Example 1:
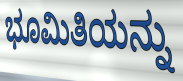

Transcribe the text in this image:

ಭೂಮಿತಿಯನ್ನು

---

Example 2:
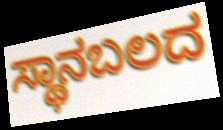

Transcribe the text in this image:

ಸ್ಥಾನಬಲದ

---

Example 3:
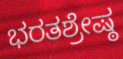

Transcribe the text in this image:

ಭರತಶ್ರೇಷ್ಠ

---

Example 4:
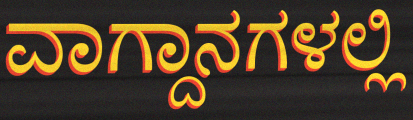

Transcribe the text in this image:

ವಾಗ್ದಾನಗಳಲ್ಲಿ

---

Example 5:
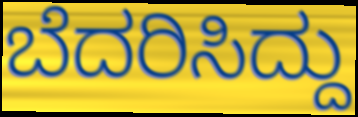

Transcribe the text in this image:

ಬೆದರಿಸಿದ್ದು